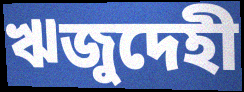
ঋজুদেহী